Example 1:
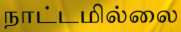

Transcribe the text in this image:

நாட்டமில்லை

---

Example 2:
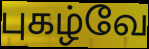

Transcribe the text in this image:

புகழ்வே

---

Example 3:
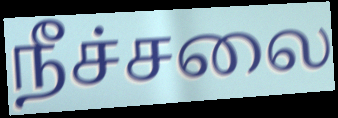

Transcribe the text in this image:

நீச்சலை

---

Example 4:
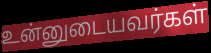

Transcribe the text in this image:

உன்னுடையவர்கள்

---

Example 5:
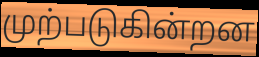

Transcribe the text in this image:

முற்படுகின்றன